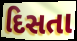
દિસતા